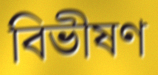
বিভীষণ